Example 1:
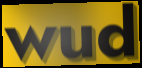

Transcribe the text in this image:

wud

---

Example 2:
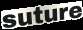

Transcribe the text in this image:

suture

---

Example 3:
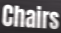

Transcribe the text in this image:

Chairs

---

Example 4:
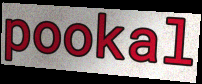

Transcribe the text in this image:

pookal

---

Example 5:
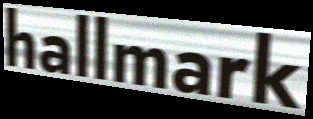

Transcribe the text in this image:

hallmark